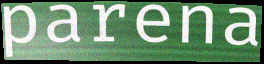
parena